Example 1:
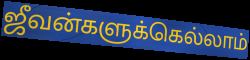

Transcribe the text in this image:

ஜீவன்களுக்கெல்லாம்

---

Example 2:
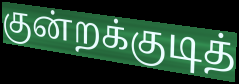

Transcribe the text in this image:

குன்றக்குடித்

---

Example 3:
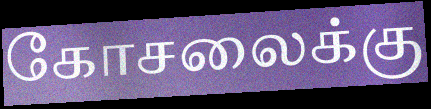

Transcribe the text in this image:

கோசலைக்கு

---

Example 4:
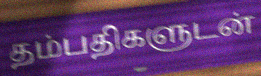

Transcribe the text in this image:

தம்பதிகளுடன்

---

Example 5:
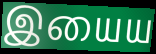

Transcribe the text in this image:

இயைய